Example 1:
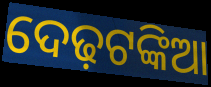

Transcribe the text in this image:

ଦେଢ଼ଟଙ୍କିଆ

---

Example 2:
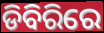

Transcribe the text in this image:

ଡିବିରିରେ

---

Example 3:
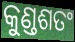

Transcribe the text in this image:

କୁଣ୍ଡଶତଂ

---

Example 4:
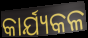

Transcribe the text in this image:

କାର୍ଯ୍ୟକଳ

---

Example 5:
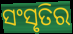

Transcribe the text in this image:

ସଂସୃତିର